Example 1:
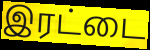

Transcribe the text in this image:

இரட்டை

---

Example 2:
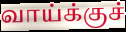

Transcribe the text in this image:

வாய்க்குச்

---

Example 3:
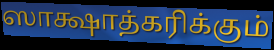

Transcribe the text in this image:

ஸாக்ஷாத்கரிக்கும்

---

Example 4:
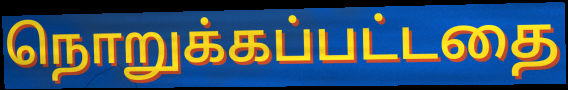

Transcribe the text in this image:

நொறுக்கப்பட்டதை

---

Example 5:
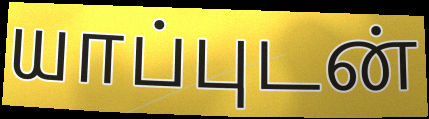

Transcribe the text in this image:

யாப்புடன்